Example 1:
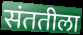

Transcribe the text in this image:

संततीला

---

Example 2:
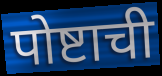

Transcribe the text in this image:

पोष्टाची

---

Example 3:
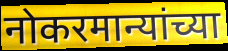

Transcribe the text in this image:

नोकरमान्यांच्या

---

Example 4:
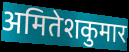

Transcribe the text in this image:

अमितेशकुमार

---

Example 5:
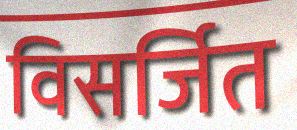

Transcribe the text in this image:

विसर्जित